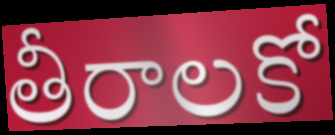
తీరాలకో